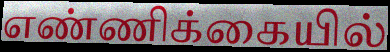
எண்ணிக்கையில்